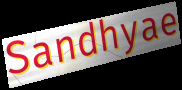
Sandhyae